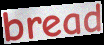
bread